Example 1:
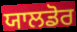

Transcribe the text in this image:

ਯਾਲਡੋਰ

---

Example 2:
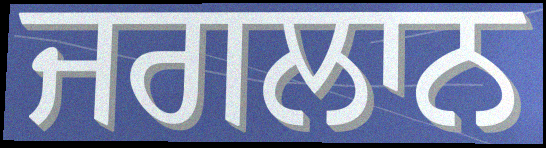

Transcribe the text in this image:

ਜਗਲਾਨ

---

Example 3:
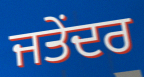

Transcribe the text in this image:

ਜਤੇਂਦਰ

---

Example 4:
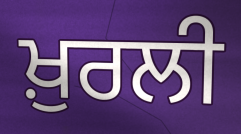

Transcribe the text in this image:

ਖ਼ੁਰਲੀ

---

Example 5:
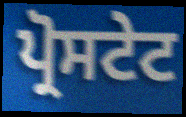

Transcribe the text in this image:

ਪ੍ਰੋਸਟੇਟ